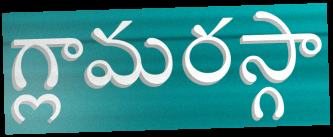
గ్లామరస్గా